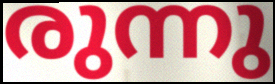
രുന്നു